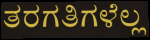
ತರಗತಿಗಳೆಲ್ಲ